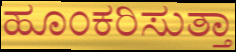
ಹೂಂಕರಿಸುತ್ತಾ